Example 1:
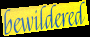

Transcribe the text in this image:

bewildered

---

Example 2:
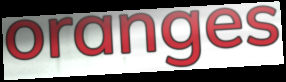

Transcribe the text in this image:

oranges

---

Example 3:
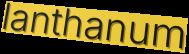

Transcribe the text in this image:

lanthanum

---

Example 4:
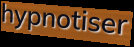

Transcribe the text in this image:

hypnotiser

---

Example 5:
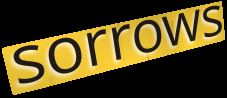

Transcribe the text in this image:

sorrows